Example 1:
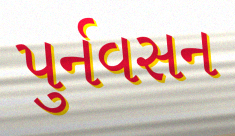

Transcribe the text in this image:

પુર્નવસન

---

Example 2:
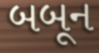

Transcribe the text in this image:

બબૂન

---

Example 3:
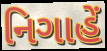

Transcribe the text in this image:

નિગાહેં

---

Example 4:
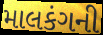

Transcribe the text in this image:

માલકંગની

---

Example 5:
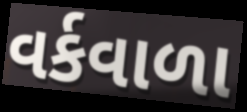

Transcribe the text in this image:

વર્કવાળા